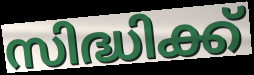
സിദ്ധിക്ക്